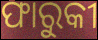
ଫାରୁକୀ